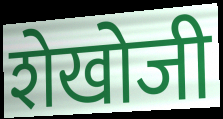
शेखोजी